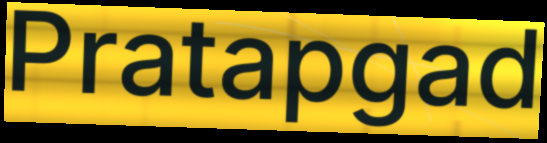
Pratapgad